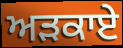
ਅੜਕਾਏ